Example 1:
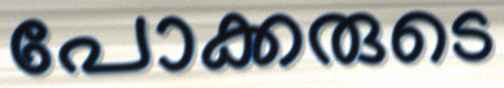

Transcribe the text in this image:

പോക്കരുടെ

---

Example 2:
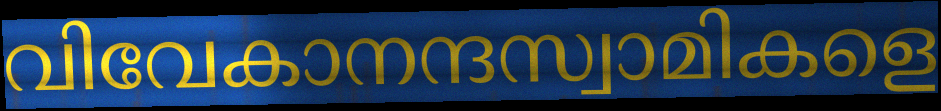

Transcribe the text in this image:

വിവേകാനന്ദസ്വാമികളെ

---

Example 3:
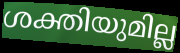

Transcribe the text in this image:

ശക്തിയുമില്ല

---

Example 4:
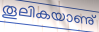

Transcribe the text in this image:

തൂലികയാണു്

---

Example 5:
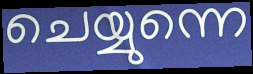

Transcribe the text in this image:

ചെയ്യുന്നെ